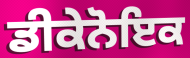
ਡੀਕੇਨੋਇਕ